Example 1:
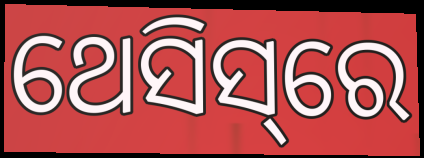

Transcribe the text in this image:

ଥେସିସ୍‌ରେ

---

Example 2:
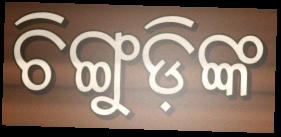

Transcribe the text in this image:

ଚିଙ୍ଗୁଡ଼ିଙ୍କ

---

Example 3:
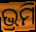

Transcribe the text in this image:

ଭ୍ରମି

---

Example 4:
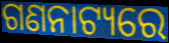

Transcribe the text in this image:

ଗଣନାଟ୍ୟରେ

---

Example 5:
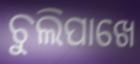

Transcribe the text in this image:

ଚୁଲିପାଖେ